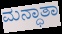
ಮನ್ಧಾತಾ